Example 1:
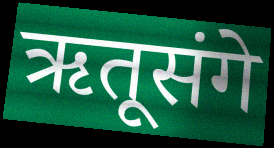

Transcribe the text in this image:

ऋतूसंगे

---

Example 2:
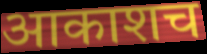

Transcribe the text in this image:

आकाशच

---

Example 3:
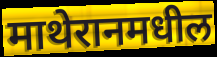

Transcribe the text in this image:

माथेरानमधील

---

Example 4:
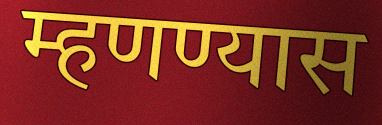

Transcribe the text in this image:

म्हणण्यास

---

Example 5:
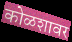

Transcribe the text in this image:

कोळशावर